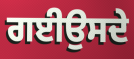
ਗਈਉਸਦੇ